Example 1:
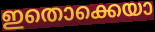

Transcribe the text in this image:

ഇതൊക്കെയാ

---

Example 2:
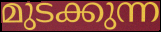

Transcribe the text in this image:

മുടക്കുന്ന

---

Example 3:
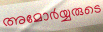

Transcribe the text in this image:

അമോർയ്യരുടെ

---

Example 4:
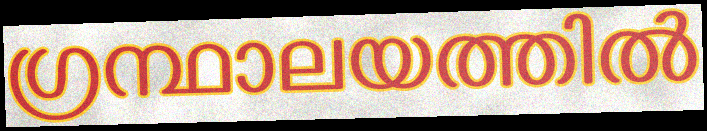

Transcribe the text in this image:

ഗ്രന്ഥാലയത്തിൽ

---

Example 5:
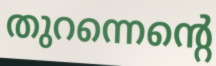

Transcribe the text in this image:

തുറന്നെന്റെ